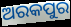
ଅରକପୁର